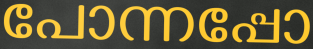
പോന്നപ്പോ